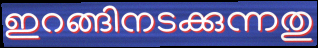
ഇറങ്ങിനടക്കുന്നതു